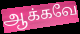
ஆக்கவே